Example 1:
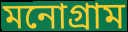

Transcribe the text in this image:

মনোগ্রাম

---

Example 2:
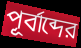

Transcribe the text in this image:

পূর্বাব্দের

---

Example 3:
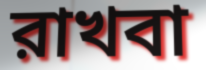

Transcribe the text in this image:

রাখবা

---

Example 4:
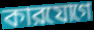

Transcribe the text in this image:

কারযোগে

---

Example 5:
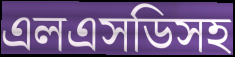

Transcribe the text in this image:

এলএসডিসহ